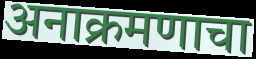
अनाक्रमणाचा